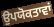
ਉਪਯੋਕਤਾਵਾਂ